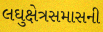
લઘુક્ષેત્રસમાસની